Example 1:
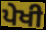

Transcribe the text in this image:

ਪੇਖੀ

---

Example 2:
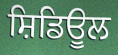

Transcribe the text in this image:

ਸ਼ਿਡਿਊਲ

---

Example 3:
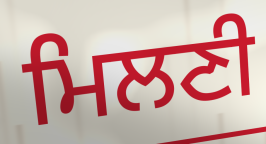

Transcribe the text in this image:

ਮਿਲਣੀ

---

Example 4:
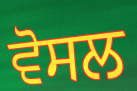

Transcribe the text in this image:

ਵੋਸਲ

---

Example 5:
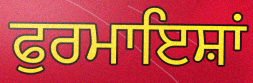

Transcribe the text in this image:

ਫੁਰਮਾਇਸ਼ਾਂ